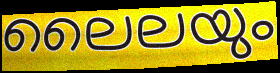
ലൈലയും